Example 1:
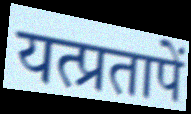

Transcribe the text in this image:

यत्प्रतापें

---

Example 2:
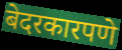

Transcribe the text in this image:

बेदरकारपणे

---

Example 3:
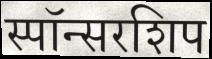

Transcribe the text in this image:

स्पॉन्सरशिप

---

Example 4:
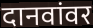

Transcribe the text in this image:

दानवांवर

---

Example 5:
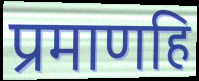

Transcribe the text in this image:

प्रमाणहि